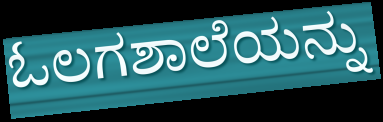
ಓಲಗಶಾಲೆಯನ್ನು